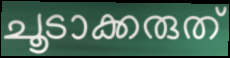
ചൂടാക്കരുത്